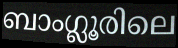
ബാംഗ്ലൂരിലെ